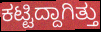
ಕಟ್ಟಿದ್ದಾಗಿತ್ತು